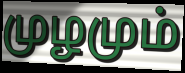
முழமும்